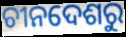
ଚୀନଦେଶରୁ